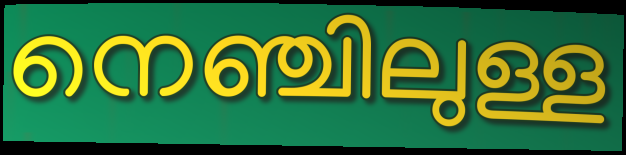
നെഞ്ചിലുള്ള